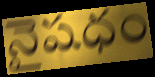
నైషధం